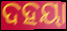
ଦହୟା